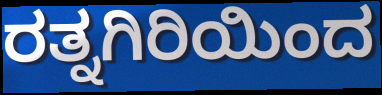
ರತ್ನಗಿರಿಯಿಂದ